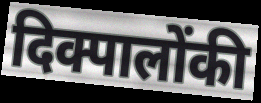
दिक्पालोंकी